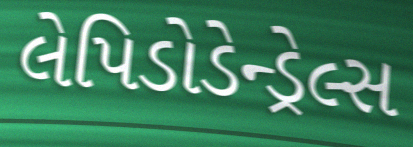
લેપિડોડેન્ડ્રેલ્સ